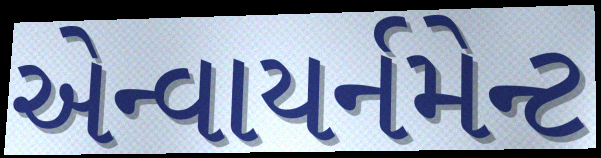
એન્વાયર્નમેન્ટ